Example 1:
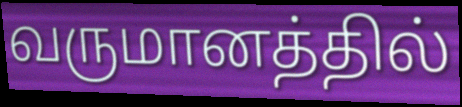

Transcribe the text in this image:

வருமானத்தில்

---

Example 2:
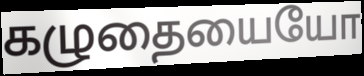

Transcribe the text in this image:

கழுதையையோ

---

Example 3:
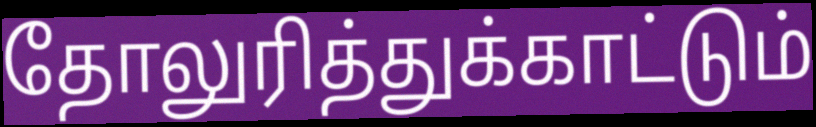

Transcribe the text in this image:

தோலுரித்துக்காட்டும்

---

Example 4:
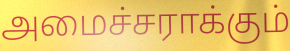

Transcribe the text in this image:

அமைச்சராக்கும்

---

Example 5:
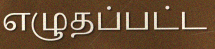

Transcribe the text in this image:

எழுதப்பட்ட